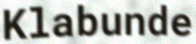
Klabunde